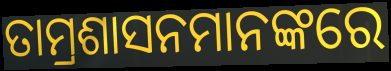
ତାମ୍ରଶାସନମାନଙ୍କରେ